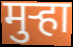
मुऱ्हा